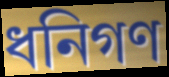
ধনিগণ